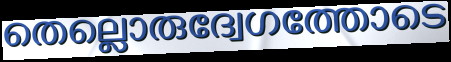
തെല്ലൊരുദ്വേഗത്തോടെ